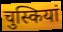
चुस्कियां